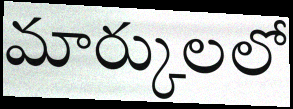
మార్కులలో